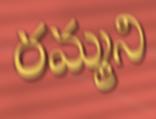
రమ్మని